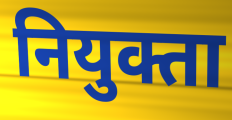
नियुक्ता